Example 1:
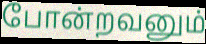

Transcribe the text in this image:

போன்றவனும்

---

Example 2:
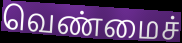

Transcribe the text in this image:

வெண்மைச்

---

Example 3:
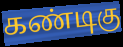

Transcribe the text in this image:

கண்டிகு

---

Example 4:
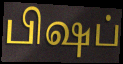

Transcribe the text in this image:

பிஷப்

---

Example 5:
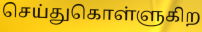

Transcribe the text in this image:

செய்துகொள்ளுகிற